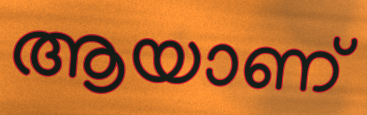
ആയാണ്